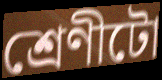
শ্ৰেণীটো